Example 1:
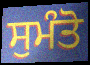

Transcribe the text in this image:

ਸੁਮੰਤੋ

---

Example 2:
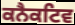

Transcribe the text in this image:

ਕਨੈਕਟਿਵ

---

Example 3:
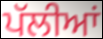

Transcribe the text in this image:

ਪੱਲੀਆਂ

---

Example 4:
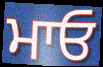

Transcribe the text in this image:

ਮਾਓ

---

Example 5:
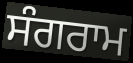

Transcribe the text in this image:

ਸੰਗਰਾਮ